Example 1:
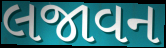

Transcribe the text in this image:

લજાવન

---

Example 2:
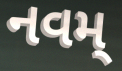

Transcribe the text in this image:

નવમ્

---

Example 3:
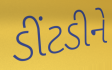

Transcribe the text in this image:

ડીંટડીને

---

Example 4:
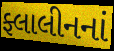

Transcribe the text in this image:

ફ્લાલીનનાં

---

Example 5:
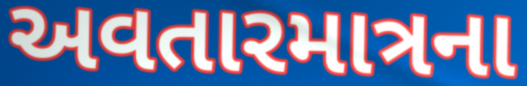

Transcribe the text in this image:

અવતારમાત્રના